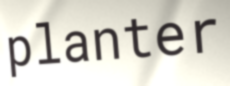
planter